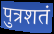
पुत्रशतं